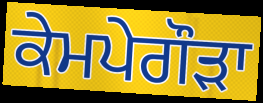
ਕੇਮਪੇਗੌੜਾ